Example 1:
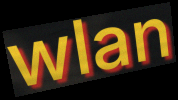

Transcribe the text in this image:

wlan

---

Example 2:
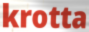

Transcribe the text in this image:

krotta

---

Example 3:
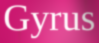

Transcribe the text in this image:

Gyrus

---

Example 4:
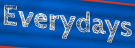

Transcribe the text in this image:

Everydays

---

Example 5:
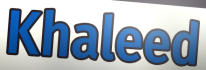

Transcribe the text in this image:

Khaleed